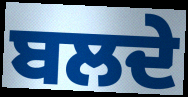
ਬਲਦੇ